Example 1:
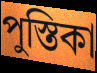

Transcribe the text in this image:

পুস্তিকা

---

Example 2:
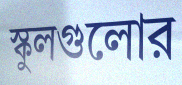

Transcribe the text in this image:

স্কুলগুলোর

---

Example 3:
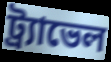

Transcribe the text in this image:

ট্র্যাভেল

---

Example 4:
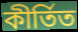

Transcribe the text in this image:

কীর্তিত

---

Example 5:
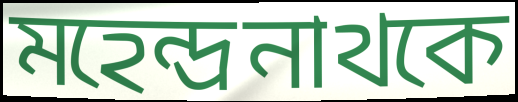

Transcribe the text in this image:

মহেন্দ্রনাথকে